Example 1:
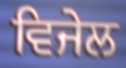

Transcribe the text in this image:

ਵਿਜੇਲ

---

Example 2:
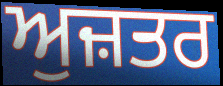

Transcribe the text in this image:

ਅੁਜ਼ਤਰ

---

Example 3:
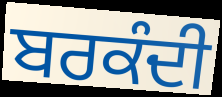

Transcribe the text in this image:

ਬਰਕੰਦੀ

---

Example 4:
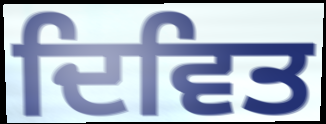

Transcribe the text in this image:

ਦਿਵਿਤ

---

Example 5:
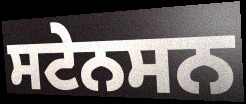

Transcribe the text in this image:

ਸਟੇਨਸਨ